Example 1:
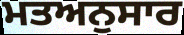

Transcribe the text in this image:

ਮਤਅਨੁਸਾਰ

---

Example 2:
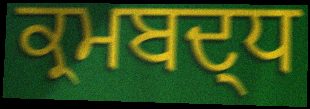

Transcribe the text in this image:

ਕ੍ਰਮਬਦ੍ਧ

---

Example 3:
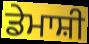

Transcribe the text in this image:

ਡੇਮਾਸ਼ੀ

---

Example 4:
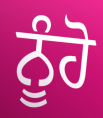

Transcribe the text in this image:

ਨੂੰਹੋ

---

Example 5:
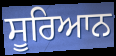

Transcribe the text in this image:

ਸੂਰਿਆਨ